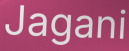
Jagani